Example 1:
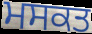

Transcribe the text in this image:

ਮਸਕਤ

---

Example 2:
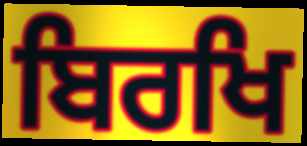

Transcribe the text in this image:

ਬਿਰਖਿ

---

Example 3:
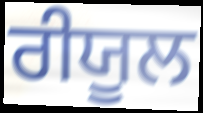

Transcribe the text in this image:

ਰੀਯੂਲ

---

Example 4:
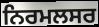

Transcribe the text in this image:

ਨਿਰਮਲਸਰ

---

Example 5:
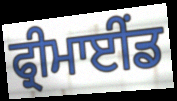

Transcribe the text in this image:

ਫ੍ਰੀਮਾਈਂਡ